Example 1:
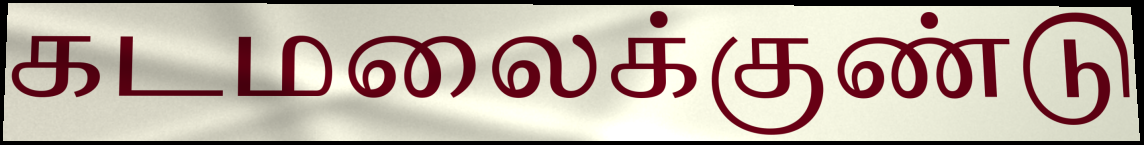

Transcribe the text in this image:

கடமலைக்குண்டு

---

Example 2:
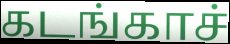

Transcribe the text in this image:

கடங்காச்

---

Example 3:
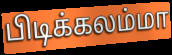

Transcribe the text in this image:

பிடிக்கலம்மா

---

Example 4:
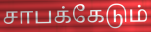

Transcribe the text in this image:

சாபக்கேடும்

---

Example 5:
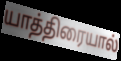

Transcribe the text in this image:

யாத்திரையால்